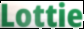
Lottie